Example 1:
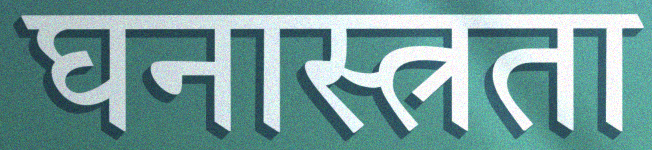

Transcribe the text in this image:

घनास्त्रता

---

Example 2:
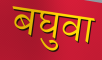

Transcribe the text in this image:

बघुवा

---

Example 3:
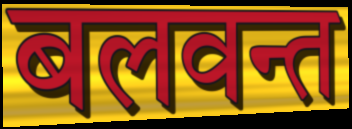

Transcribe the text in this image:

बलवन्‍त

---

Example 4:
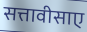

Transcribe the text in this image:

सत्तावीसाए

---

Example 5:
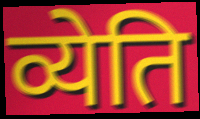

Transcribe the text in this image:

व्येति